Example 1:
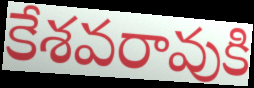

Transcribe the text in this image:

కేశవరావుకి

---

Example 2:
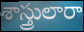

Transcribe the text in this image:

శాస్త్రులారా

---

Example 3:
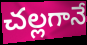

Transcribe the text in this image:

చల్లగానే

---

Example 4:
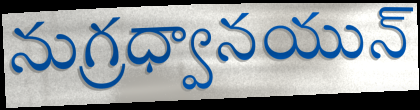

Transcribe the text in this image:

నుగ్రధ్వానయున్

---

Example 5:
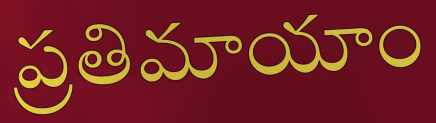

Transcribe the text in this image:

ప్రతిమాయాం